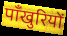
पाँखुरियों